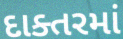
દાક્તરમાં